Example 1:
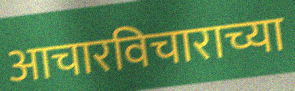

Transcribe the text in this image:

आचारविचाराच्या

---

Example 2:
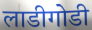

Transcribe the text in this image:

लाडीगोडी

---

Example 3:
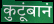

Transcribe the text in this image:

कुटूंबानं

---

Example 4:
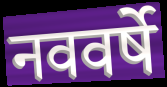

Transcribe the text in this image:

नववर्षे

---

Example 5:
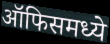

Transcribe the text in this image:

ऑफिसमध्ये